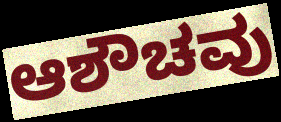
ಆಶೌಚವು